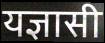
यज्ञासी